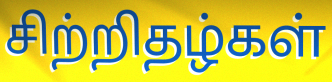
சிற்றிதழ்கள்